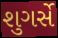
શુગર્સે